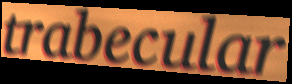
trabecular